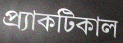
প্র্যাকটিকাল